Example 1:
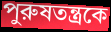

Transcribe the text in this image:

পুরুষতন্ত্রকে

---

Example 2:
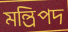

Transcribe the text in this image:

মন্ত্রিপদ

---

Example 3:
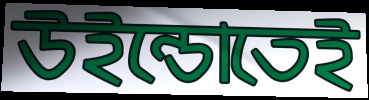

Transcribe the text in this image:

উইন্ডোতেই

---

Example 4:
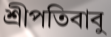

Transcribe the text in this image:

শ্রীপতিবাবু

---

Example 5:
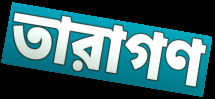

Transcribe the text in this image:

তারাগণ